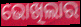
ଭୋଖିଲାର